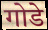
गोडे